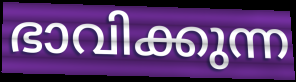
ഭാവിക്കുന്ന